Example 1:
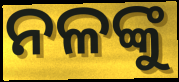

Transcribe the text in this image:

ନଳଙ୍କୁ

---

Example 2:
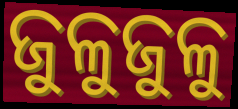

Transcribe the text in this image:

ଜୁଳୁଜୁଳୁ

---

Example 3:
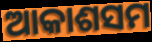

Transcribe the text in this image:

ଆକାଶସମ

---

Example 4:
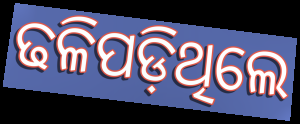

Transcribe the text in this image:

ଢଳିପଡ଼ିଥିଲେ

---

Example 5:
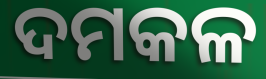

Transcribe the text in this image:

ଦମକଳ